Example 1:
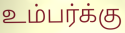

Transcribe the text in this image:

உம்பர்க்கு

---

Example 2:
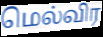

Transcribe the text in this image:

மெல்விர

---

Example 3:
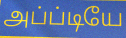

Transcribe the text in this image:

அப்ப்டியே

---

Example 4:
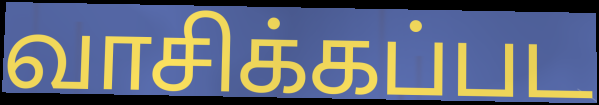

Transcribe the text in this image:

வாசிக்கப்பட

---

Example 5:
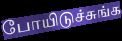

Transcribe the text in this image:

போயிடுச்சுங்க